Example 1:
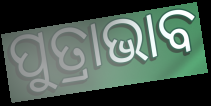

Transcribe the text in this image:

ପୁତ୍ରାଭାବ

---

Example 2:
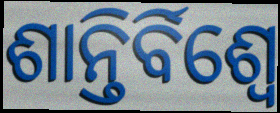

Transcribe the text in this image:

ଶାନ୍ତିର୍ବିଶ୍ୱେ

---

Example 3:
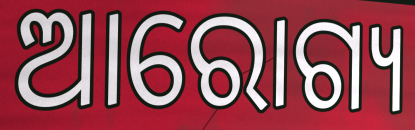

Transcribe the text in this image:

ଆରୋଗ୍ଯ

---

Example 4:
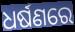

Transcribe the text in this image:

ଧର୍ଷଣରେ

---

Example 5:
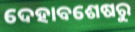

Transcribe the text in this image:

ଦେହାବଶେଷରୁ